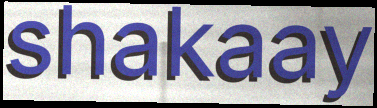
shakaay